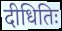
दीधितिः